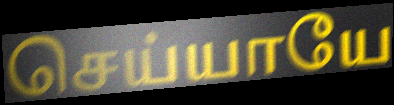
செய்யாயே